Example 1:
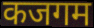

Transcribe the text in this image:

कजगम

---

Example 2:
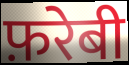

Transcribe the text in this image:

फ़रेबी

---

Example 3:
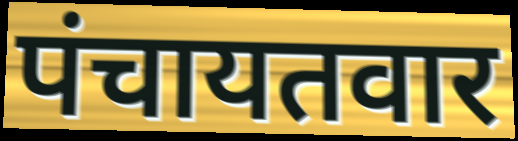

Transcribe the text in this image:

पंचायतवार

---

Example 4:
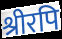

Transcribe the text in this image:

श्रीरपि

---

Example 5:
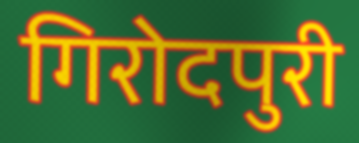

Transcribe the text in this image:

गिरोदपुरी